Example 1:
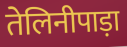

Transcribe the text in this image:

तेलिनीपाड़ा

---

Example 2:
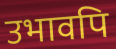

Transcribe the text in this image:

उभावपि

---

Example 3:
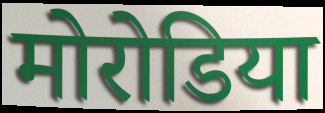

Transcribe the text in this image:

मोरोडिया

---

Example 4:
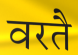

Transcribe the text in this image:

वरतै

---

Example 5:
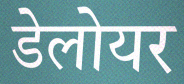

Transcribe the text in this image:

डेलोयर